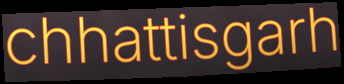
chhattisgarh